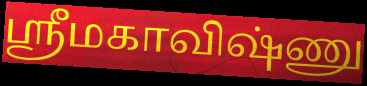
ஸ்ரீமகாவிஷ்ணு